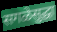
सगळेसुद्धा